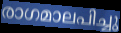
രാഗമാലപിച്ചു